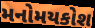
મનોમયકોશ